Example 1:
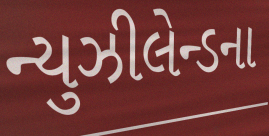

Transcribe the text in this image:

ન્યુઝીલેન્ડના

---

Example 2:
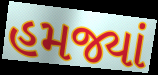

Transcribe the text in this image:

હમજ્યાં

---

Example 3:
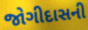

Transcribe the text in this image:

જોગીદાસની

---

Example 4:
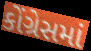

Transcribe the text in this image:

કોંગ્રેસમાં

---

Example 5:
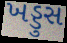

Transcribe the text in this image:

ખડ્ડુસ